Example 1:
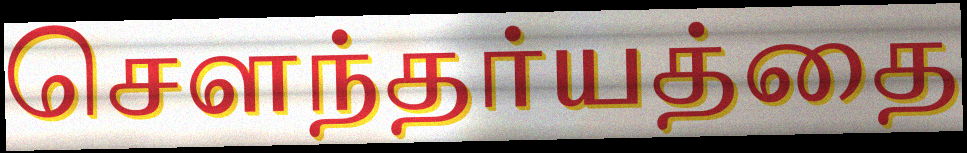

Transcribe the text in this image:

செளந்தர்யத்தை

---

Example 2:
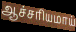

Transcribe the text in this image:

ஆச்சரியமாய்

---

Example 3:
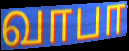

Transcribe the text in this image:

வாபா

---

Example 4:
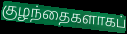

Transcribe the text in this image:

குழந்தைகளாகப்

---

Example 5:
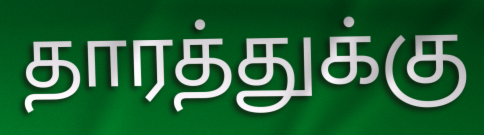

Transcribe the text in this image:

தாரத்துக்கு